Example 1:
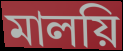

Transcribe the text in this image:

মালয়ি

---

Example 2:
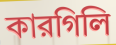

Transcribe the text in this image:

কারগিলি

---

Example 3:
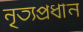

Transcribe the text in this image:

নৃত্যপ্রধান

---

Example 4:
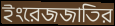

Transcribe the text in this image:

ইংরেজজাতির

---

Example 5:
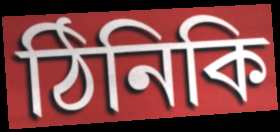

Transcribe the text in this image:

ঠিনিকি